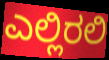
ಎಲ್ಲಿರಲಿ